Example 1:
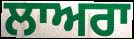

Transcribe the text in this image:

ਲਾਅਰਾ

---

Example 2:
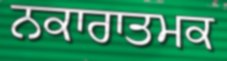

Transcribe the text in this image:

ਨਕਾਰਾਤਮਕ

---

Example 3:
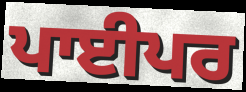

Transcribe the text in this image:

ਪਾਈਪਰ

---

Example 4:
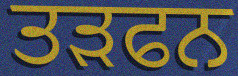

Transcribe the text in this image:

ਤੜਫਨ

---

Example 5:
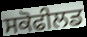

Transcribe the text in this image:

ਸਕੋਫੀਲਡ